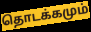
தொடக்கமும்